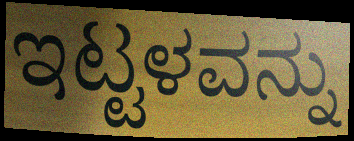
ಇಟ್ಟಳವನ್ನು